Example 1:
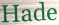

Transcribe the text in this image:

Hade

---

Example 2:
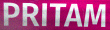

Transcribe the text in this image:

PRITAM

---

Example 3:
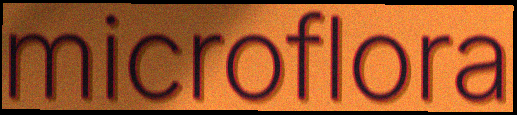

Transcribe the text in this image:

microflora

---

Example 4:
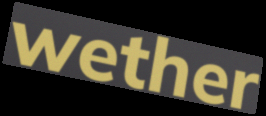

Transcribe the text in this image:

wether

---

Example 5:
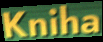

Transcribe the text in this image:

Kniha